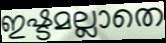
ഇഷ്ടമല്ലാതെ